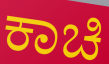
ಕಾಚಿ